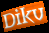
Diku